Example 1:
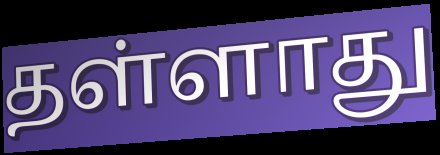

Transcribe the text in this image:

தள்ளாது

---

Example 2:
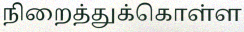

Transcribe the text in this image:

நிறைத்துக்கொள்ள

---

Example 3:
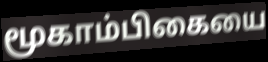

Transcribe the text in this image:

மூகாம்பிகையை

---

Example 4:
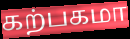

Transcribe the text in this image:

கற்பகமா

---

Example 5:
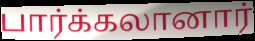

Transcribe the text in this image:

பார்க்கலானார்